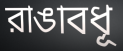
রাঙাবধূ